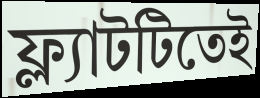
ফ্ল্যাটটিতেই